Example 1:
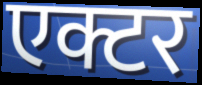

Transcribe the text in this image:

एक्टर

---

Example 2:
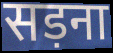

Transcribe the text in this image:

सड़ना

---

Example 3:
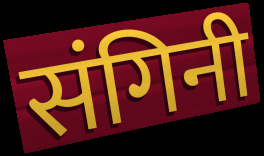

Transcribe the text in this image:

संगिनी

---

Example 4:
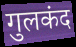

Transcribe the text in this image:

गुलकंद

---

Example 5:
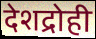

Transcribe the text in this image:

देशद्रोही